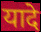
यादे